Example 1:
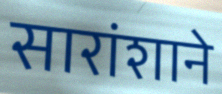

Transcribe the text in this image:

सारांशाने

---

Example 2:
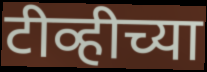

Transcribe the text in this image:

टीव्हीच्या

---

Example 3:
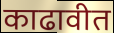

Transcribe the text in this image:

काढावीत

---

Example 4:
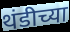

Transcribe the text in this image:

थंडीच्या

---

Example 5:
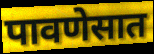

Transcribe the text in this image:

पावणेसात